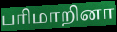
பரிமாறினா